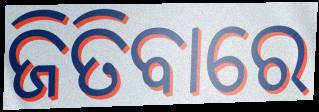
ଜିତିବାରେ